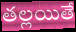
తల్లయితే